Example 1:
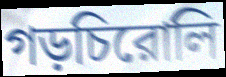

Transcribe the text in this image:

গড়চিরোলি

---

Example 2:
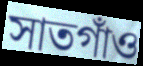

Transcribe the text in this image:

সাতগাঁও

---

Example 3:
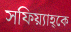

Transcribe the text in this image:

সফিয়্যাহ্কে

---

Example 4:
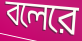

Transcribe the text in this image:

বলেরে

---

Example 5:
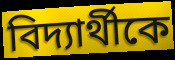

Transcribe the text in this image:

বিদ্যার্থীকে